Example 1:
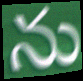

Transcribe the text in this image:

ను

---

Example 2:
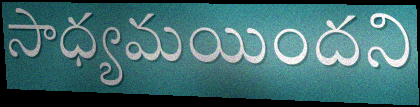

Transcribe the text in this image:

సాధ్యమయిందని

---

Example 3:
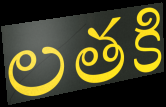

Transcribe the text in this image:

లతకి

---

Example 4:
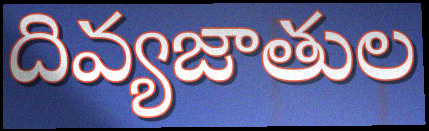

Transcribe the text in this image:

దివ్యజాతుల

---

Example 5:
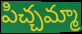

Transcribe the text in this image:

పిచ్చమ్మా